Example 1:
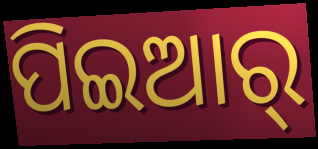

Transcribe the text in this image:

ପିଇଆର୍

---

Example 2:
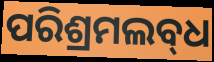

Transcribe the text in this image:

ପରିଶ୍ରମଲବ୍‍ଧ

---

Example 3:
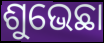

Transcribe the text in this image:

ଶୁଭେଛା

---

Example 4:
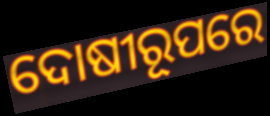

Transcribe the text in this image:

ଦୋଷୀରୂପରେ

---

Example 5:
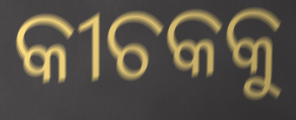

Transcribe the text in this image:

କୀଚକକୁ